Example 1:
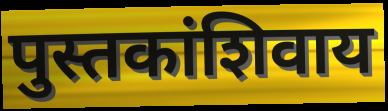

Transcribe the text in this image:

पुस्तकांशिवाय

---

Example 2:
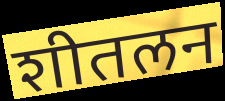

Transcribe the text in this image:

शीतलन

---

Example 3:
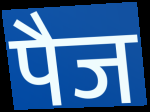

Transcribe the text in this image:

पैज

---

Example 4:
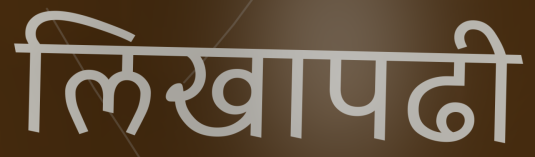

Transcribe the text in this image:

लिखापढी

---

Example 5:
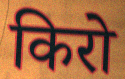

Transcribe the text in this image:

किरो